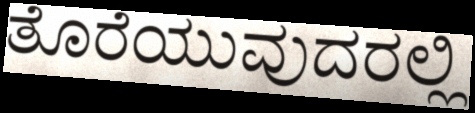
ತೊರೆಯುವುದರಲ್ಲಿ